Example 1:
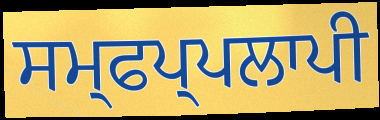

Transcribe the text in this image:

ਸਮ੍ਫਪ੍ਪਲਾਪੀ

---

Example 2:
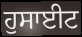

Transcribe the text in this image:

ਹੁਸਾਈਟ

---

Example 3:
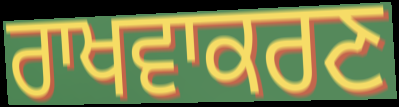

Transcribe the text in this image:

ਰਾਖਵਾਕਰਣ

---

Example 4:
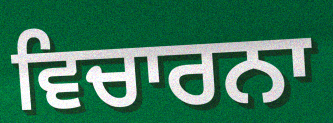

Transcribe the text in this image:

ਵਿਚਾਰਨਾ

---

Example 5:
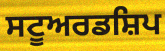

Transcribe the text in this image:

ਸਟੂਅਰਡਸ਼ਿਪ